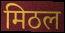
मिठल